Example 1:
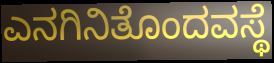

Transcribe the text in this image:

ಎನಗಿನಿತೊಂದವಸ್ಥೆ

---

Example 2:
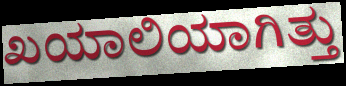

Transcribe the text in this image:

ಖಯಾಲಿಯಾಗಿತ್ತು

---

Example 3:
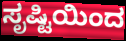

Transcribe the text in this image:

ಸೃಷ್ಟಿಯಿಂದ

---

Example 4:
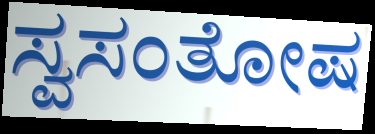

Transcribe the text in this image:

ಸ್ವಸಂತೋಷ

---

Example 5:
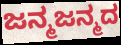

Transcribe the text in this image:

ಜನ್ಮಜನ್ಮದ